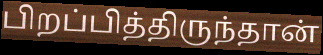
பிறப்பித்திருந்தான்